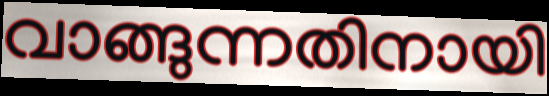
വാങ്ങുന്നതിനായി